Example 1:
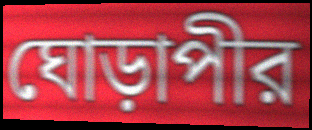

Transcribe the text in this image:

ঘোড়াপীর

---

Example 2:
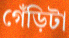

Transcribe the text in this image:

গেঁড়িটা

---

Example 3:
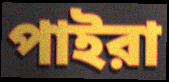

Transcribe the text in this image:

পাইরা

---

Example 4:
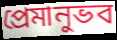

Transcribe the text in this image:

প্রেমানুভব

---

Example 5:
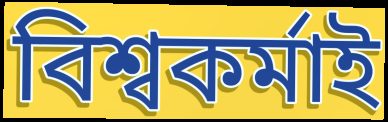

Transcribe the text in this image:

বিশ্বকর্মাই